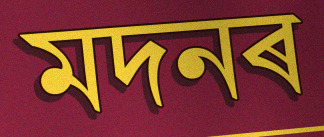
মদনৰ